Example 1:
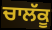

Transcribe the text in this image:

ਚਾਲੱਕੂ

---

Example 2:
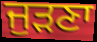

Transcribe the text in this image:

ਜੁੜਣਾ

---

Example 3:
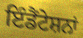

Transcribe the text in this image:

ਇੰਡੈਂਟੇਸ਼ਨਾਂ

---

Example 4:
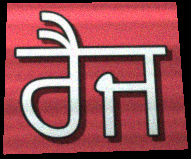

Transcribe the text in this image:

ਰੈਜ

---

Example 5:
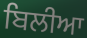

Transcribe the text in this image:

ਬਿਲੀਆ